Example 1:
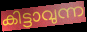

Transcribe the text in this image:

കിട്ടാവുന്ന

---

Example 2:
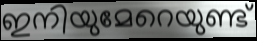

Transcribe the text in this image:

ഇനിയുമേറെയുണ്ട്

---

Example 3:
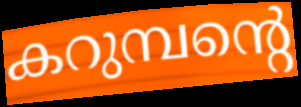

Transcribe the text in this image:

കറുമ്പന്റെ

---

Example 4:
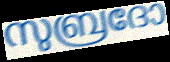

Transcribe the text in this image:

സുബ്രദോ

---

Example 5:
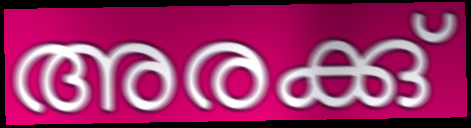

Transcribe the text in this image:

അരക്കു്